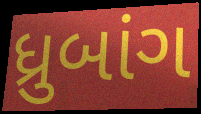
ધ્રુબાંગ